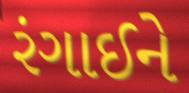
રંગાઈને